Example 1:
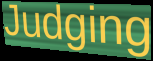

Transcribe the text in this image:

Judging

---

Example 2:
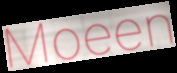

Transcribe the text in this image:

Moeen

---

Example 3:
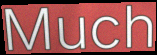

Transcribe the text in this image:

Much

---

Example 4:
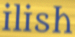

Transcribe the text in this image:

ilish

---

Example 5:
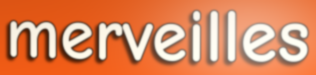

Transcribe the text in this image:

merveilles